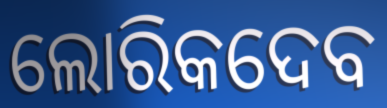
ଲୋରିକଦେବ